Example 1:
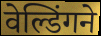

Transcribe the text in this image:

वेल्डिंगने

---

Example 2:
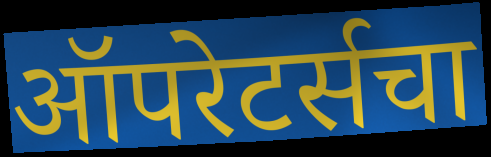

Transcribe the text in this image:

ऑपरेटर्सचा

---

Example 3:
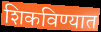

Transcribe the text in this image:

शिकविण्यात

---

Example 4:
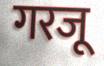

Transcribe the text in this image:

गरजू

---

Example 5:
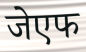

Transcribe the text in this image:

जेएफ